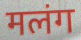
मलंग